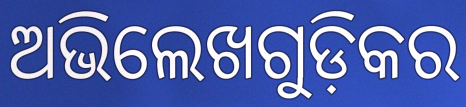
ଅଭିଲେଖଗୁଡ଼ିକର